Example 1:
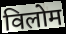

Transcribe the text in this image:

विलोम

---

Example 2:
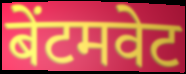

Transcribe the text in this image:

बेंटमवेट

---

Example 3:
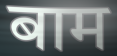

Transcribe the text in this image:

बाम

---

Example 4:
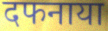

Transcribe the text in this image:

दफनाया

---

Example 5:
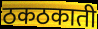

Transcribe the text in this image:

ठकठकाती